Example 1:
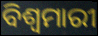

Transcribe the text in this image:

ବିଶ୍ୱମାରୀ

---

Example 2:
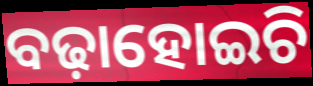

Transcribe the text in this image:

ବଢ଼ାହୋଇଚି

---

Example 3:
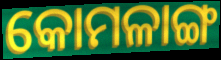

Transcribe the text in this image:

କୋମଳାଙ୍ଗ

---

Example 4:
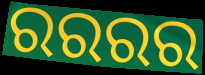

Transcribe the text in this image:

ରରରର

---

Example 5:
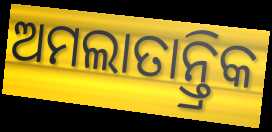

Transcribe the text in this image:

ଅମଲାତାନ୍ତ୍ରିକ